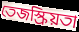
তেজস্ক্রিয়তা